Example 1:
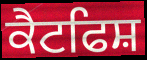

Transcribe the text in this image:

ਕੈਟਫਿਸ਼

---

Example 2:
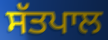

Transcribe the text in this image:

ਸੱਤਪਾਲ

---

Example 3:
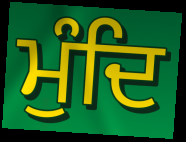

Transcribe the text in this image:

ਮੁੰਦਿ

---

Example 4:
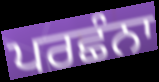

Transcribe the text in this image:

ਪਰਛੰਨਾ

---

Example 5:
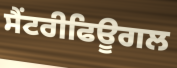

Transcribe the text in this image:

ਸੈਂਟਰੀਫਿਊਗਲ